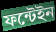
ফন্টেইন